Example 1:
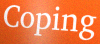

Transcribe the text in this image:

Coping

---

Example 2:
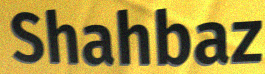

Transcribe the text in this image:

Shahbaz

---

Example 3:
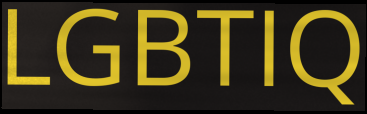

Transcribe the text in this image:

LGBTIQ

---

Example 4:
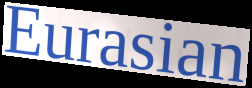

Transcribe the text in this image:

Eurasian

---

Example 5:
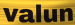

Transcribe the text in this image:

valun